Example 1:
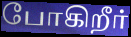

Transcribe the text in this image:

போகிறீர்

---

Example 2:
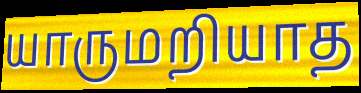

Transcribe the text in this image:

யாருமறியாத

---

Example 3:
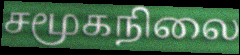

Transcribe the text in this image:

சமூகநிலை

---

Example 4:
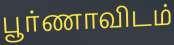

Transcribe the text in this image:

பூர்ணாவிடம்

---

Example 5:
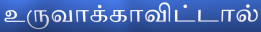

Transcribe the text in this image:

உருவாக்காவிட்டால்